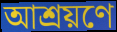
আশ্রয়ণে